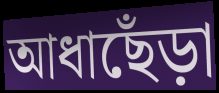
আধাছেঁড়া